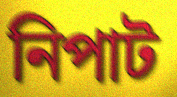
নিপাট